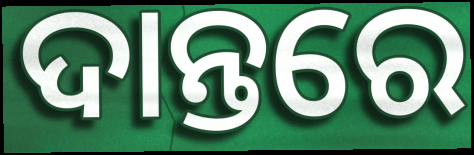
ଦାନ୍ତରେ